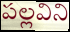
పల్లవిని